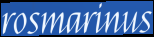
rosmarinus